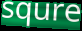
squre